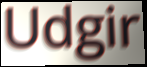
Udgir